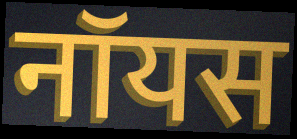
नॉयस